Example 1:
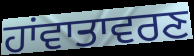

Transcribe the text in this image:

ਹਾਂਵਾਤਾਵਰਣ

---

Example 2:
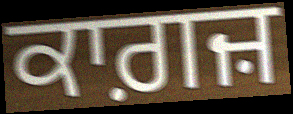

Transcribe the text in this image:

ਕਾਗ਼ਜ਼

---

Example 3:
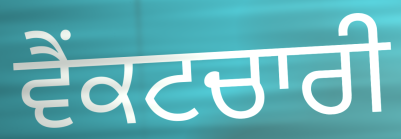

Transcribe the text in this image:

ਵੈਂਕਟਚਾਰੀ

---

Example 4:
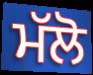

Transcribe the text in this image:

ਮੱਲੋ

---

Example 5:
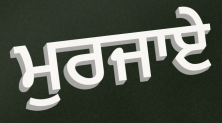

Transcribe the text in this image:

ਮੁਰਜਾਏ